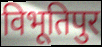
विभूतिपुर